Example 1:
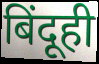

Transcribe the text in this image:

बिंदूही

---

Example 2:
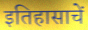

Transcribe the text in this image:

इतिहासाचें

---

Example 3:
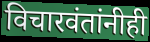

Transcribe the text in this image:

विचारवंतांनीही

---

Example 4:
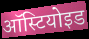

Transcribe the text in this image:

ऑस्टियोइड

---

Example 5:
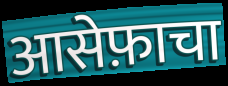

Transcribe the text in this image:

आसेफ़ाचा